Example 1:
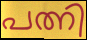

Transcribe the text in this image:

പത്നി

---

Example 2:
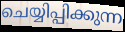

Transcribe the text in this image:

ചെയ്യിപ്പിക്കുന്ന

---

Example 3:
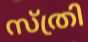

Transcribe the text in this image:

സ്ത്രി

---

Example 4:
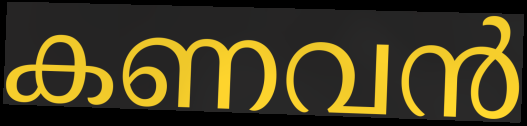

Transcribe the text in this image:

കണവൻ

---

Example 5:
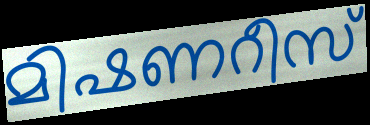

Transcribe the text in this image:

മിഷണറീസ്